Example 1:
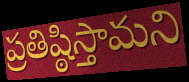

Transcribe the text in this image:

ప్రతిష్ఠిస్తామని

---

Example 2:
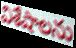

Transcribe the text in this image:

విశేషాలను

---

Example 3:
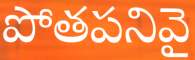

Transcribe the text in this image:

పోతపనివై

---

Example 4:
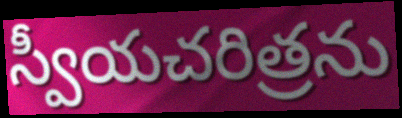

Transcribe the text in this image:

స్వీయచరిత్రను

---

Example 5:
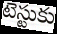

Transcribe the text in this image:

టెస్టుకు